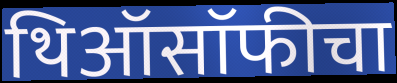
थिऑसॉफीचा